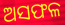
ଅସଫଳ